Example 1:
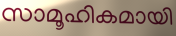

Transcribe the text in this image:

സാമൂഹികമായി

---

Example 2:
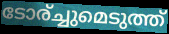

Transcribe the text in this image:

ടോര്ച്ചുമെടുത്ത്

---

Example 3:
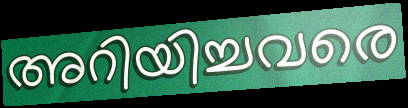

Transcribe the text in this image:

അറിയിച്ചവരെ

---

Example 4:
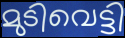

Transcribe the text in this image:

മുടിവെട്ടി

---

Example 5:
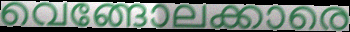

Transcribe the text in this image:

വെങ്ങോലക്കാരെ